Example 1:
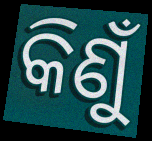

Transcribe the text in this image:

କିଣୁଁ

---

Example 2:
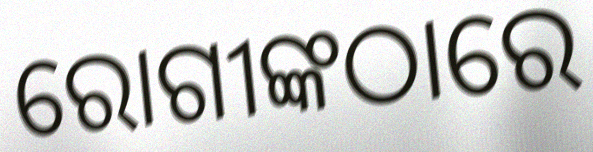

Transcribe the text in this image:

ରୋଗୀଙ୍କଠାରେ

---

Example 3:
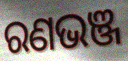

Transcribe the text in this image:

ରଣଭଞ୍ଜ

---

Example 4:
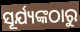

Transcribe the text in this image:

ସୂର୍ଯ୍ୟଙ୍କଠାରୁ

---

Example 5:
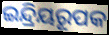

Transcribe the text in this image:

ଇନ୍ଦ୍ରିୟରୂପକ